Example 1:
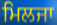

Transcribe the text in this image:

ਮਿਲਜਾ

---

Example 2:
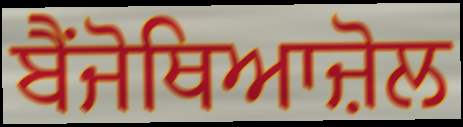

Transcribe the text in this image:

ਬੈਂਜੋਥਿਆਜ਼ੋਲ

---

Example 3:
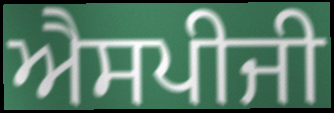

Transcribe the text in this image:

ਐਸਪੀਜੀ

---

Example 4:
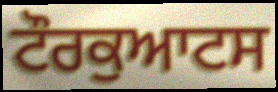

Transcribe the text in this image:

ਟੌਰਕੁਆਟਸ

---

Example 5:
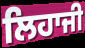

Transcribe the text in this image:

ਲਿਹਾਜੀ